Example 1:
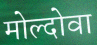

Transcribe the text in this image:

मोल्दोवा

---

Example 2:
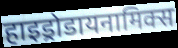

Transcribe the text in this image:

हाइड्रोडायनामिक्स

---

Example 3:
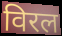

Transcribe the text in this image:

विरल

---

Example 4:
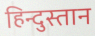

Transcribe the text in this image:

हिन्‍दुस्‍तान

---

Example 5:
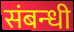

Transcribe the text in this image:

संबन्‍धी